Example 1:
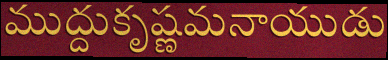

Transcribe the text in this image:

ముద్దుకృష్ణమనాయుడు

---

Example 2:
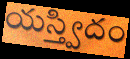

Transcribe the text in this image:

యస్త్విదం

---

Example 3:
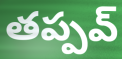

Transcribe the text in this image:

తప్పవ్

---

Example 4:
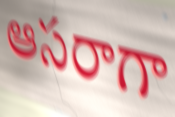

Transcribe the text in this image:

ఆసరాగా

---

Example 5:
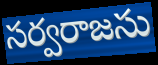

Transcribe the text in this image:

సర్వరాజసు